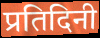
प्रतिदिनी